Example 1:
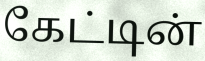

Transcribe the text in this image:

கேட்டின்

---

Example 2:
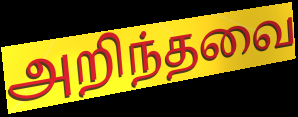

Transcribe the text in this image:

அறிந்தவை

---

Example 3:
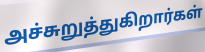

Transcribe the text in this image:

அச்சுறுத்துகிறார்கள்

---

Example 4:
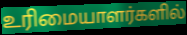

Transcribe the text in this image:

உரிமையாளர்களில்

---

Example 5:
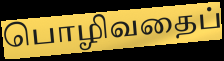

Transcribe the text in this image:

பொழிவதைப்